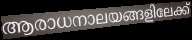
ആരാധനാലയങ്ങളിലേക്ക്